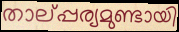
താല്പ്പര്യമുണ്ടായി